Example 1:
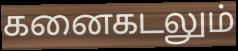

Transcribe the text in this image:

கனைகடலும்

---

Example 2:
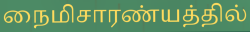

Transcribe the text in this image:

நைமிசாரண்யத்தில்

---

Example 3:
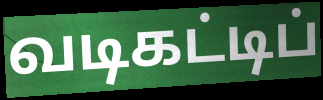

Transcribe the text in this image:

வடிகட்டிப்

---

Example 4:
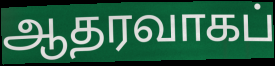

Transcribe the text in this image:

ஆதரவாகப்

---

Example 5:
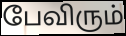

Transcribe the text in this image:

பேவிரும்